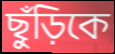
ছুঁড়িকে